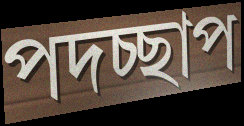
পদচ্ছাপ